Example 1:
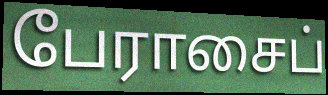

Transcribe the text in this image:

பேராசைப்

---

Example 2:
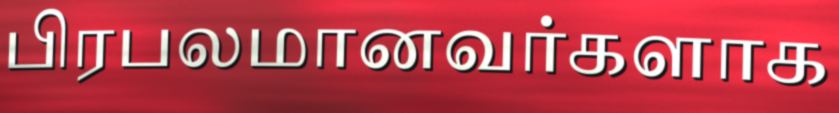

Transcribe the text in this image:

பிரபலமானவர்களாக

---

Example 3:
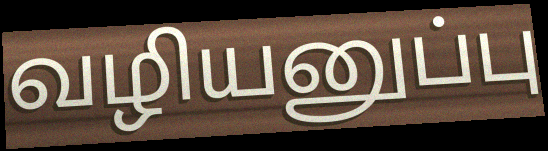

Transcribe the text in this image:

வழியனுப்பு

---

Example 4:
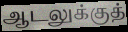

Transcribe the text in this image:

ஆடலுக்குத்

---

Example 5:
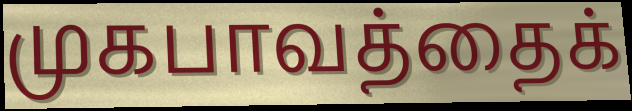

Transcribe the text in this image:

முகபாவத்தைக்